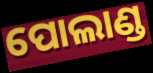
ପୋଲାଣ୍ଡ